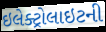
ઇલેક્ટ્રોલાઇટની